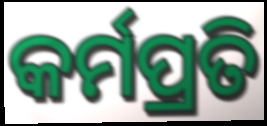
କର୍ମପ୍ରତି